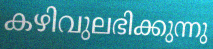
കഴിവുലഭിക്കുന്നു